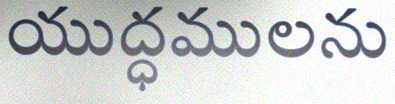
యుద్ధములను